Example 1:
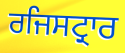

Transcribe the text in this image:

ਰਜਿਸਟ੍ਰਾਰ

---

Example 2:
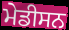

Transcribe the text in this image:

ਮੇਡੀਸਨ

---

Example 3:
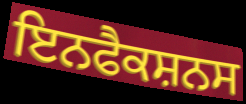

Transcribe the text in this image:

ਇਨਫੈਕਸ਼ਨਸ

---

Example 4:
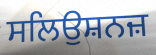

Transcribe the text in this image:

ਸਲਿਉਸ਼ਨਜ਼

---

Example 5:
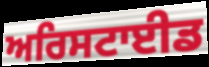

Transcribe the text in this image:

ਅਰਿਸਟਾਈਡ